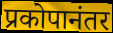
प्रकोपानंतर